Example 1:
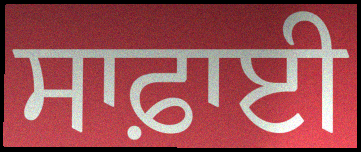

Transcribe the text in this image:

ਸਾਫ਼ਾਈ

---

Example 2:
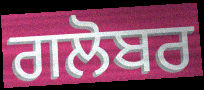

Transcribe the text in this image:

ਗਲੋਬਰ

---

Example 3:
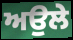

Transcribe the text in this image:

ਅਉਲੇ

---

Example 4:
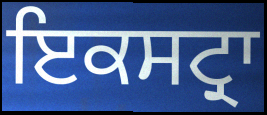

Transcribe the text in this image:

ਇਕਸਟ੍ਰਾ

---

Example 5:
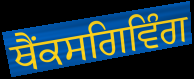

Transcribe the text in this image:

ਥੈਂਕਸਗਿਵਿੰਗ